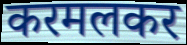
करमलकर